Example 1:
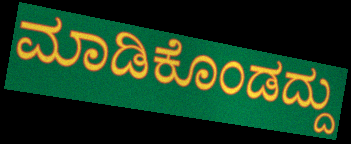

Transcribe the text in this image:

ಮಾಡಿಕೊಂಡದ್ದು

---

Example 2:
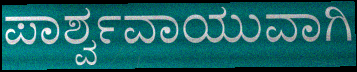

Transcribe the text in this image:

ಪಾರ್ಶ್ವವಾಯುವಾಗಿ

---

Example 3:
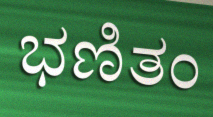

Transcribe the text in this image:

ಭಣಿತಂ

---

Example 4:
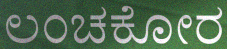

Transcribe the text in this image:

ಲಂಚಕೋರ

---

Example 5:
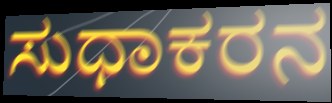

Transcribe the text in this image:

ಸುಧಾಕರನ